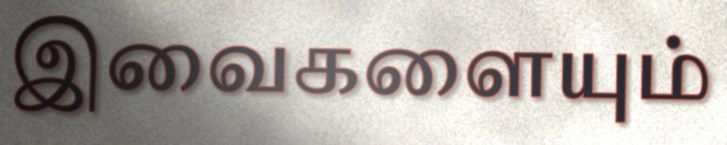
இவைகளையும்